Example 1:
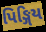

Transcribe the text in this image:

પિઙ્ગિય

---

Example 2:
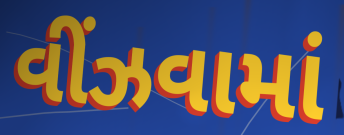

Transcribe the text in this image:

વીંઝવામાં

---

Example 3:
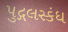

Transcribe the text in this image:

પુદ્ગલસ્કંધ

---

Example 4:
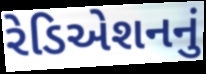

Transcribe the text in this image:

રેડિએશનનું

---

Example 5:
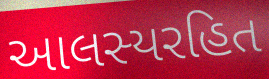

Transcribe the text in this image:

આલસ્યરહિત